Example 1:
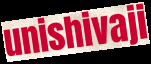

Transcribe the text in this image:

unishivaji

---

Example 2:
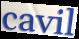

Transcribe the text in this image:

cavil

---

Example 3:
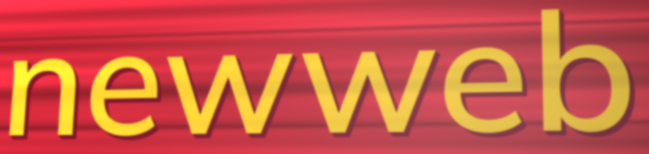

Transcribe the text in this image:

newweb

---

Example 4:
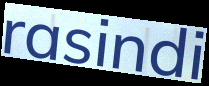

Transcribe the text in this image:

rasindi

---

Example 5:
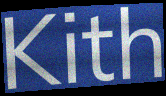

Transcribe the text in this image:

Kith